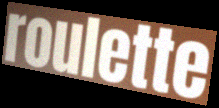
roulette